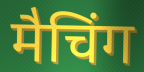
मैचिंग